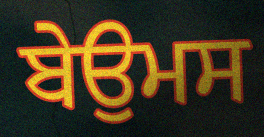
ਬੇਉਮਸ